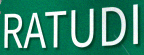
RATUDI